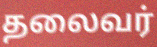
தலைவர்